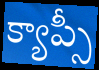
క్యాప్సీ